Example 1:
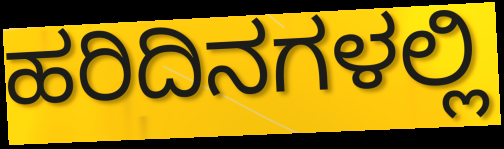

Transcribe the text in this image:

ಹರಿದಿನಗಳಲ್ಲಿ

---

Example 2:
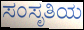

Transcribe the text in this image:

ಸಂಸೃತಿಯ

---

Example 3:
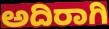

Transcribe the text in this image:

ಅದಿರಾಗಿ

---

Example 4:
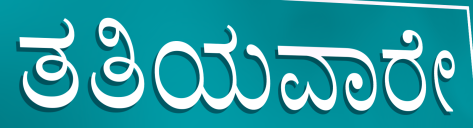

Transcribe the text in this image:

ತತಿಯವಾರೇ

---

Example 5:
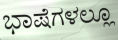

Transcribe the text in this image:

ಭಾಷೆಗಳಲ್ಲೂ